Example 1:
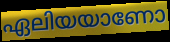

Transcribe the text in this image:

ഏലിയയാണോ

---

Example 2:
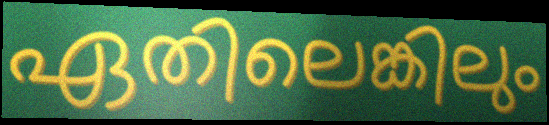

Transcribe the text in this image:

ഏതിലെങ്കിലും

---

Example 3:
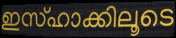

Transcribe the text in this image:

ഇസ്ഹാക്കിലൂടെ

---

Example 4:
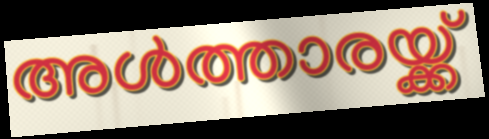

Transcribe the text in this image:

അൾത്താരയ്ക്ക്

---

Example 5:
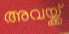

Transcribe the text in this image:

അവയ്ക്ക്